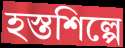
হস্তশিল্পে